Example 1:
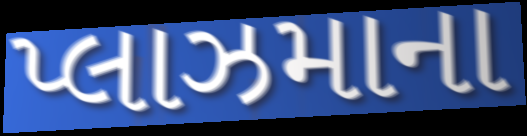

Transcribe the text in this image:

પ્લાઝમાના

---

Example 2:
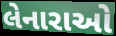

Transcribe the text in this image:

લેનારાઓ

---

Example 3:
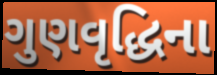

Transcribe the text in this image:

ગુણવૃદ્ધિના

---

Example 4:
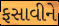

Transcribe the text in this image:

ફસાવીને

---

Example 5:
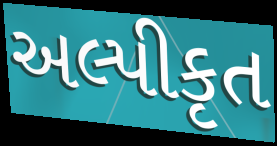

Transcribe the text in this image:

અલ્પીકૃત